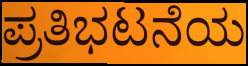
ಪ್ರತಿಭಟನೆಯ